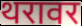
थरावर